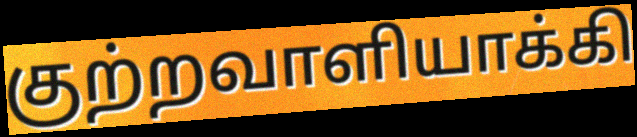
குற்றவாளியாக்கி